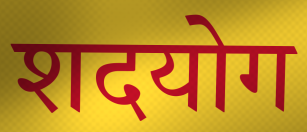
शदयोग